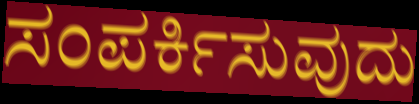
ಸಂಪರ್ಕಿಸುವುದು